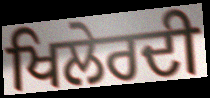
ਖਿਲੇਰਦੀ